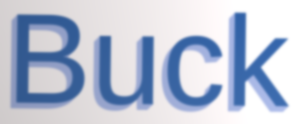
Buck